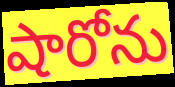
షారోను